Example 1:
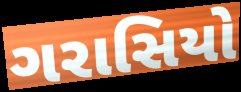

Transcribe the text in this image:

ગરાસિયો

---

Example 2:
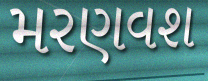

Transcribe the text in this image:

મરણવશ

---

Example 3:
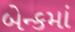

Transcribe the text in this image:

બેન્કમાં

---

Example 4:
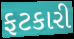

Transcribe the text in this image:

ફટકારી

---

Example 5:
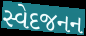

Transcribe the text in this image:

સ્વેદજનન